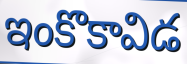
ఇంకొకావిడ